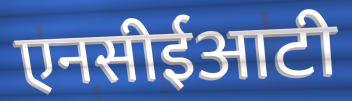
एनसीईआटी